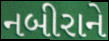
નબીરાને